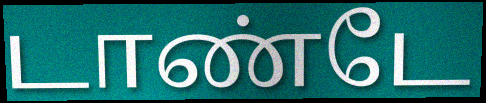
டாண்டே